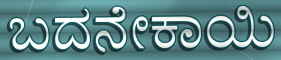
ಬದನೇಕಾಯಿ